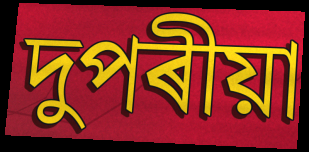
দুপৰীয়া